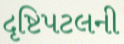
દૃષ્ટિપટલની